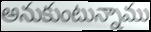
అనుకుంటున్నాము